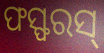
ଫସ୍ଫରସ୍